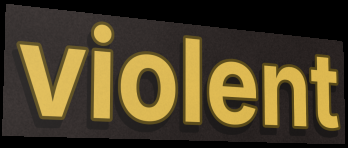
violent